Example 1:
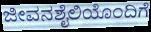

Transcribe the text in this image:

ಜೀವನಶೈಲಿಯೊಂದಿಗೆ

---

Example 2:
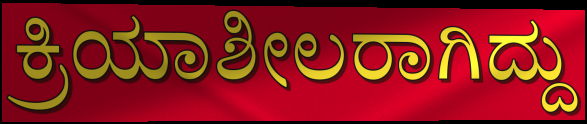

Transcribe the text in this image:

ಕ್ರಿಯಾಶೀಲರಾಗಿದ್ದು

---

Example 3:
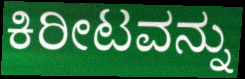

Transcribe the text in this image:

ಕಿರೀಟವನ್ನು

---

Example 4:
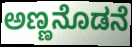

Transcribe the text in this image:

ಅಣ್ಣನೊಡನೆ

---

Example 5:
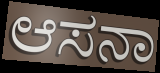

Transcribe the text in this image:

ಆಸನಾ